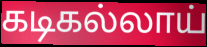
கடிகல்லாய்